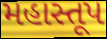
મહાસ્તૂપ